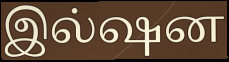
இல்ஷன